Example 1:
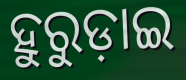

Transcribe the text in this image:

ହୁରୁଡ଼ାଇ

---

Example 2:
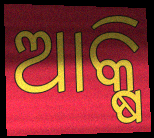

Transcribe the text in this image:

ଆକ୍ଷି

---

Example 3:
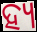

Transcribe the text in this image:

ହ୍ୟ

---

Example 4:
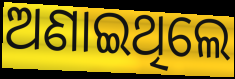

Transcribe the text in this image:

ଅଣାଇଥିଲେ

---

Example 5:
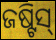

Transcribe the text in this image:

ଜଷ୍ଟିସ୍